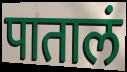
पातालं